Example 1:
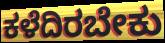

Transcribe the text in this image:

ಕಳೆದಿರಬೇಕು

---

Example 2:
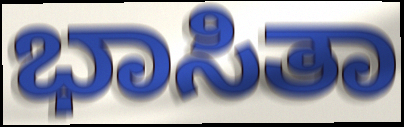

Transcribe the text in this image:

ಭಾಸಿತಾ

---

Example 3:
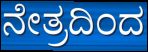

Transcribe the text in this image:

ನೇತ್ರದಿಂದ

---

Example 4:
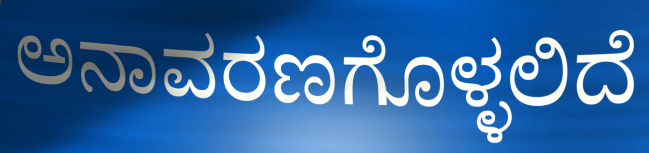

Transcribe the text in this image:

ಅನಾವರಣಗೊಳ್ಳಲಿದೆ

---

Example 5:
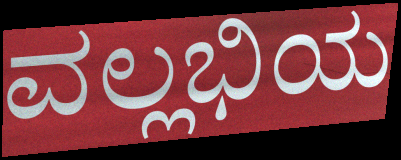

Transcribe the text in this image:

ವಲ್ಲಭಿಯ